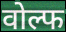
वोल्फ